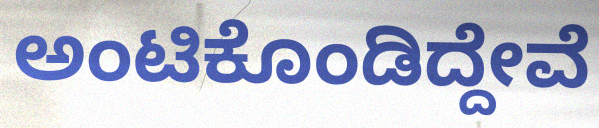
ಅಂಟಿಕೊಂಡಿದ್ದೇವೆ